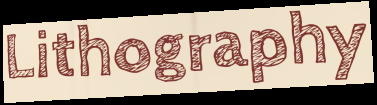
Lithography